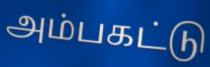
அம்பகட்டு